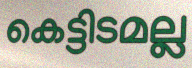
കെട്ടിടമല്ല